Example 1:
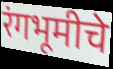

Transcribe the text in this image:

रंगभूमीचे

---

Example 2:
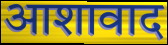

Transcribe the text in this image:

आशावाद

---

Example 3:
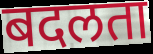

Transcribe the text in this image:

बदलता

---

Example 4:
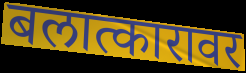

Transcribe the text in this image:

बलात्कारावर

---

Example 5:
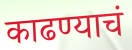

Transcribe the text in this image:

काढण्याचं